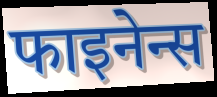
फाइनेन्स